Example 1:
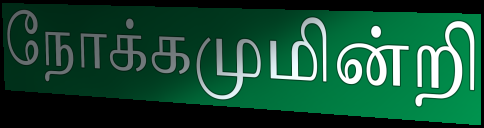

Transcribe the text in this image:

நோக்கமுமின்றி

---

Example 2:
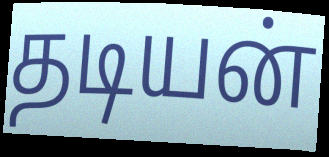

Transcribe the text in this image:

தடியன்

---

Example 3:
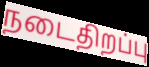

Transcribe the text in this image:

நடைதிறப்பு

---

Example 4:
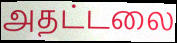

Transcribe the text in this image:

அதட்டலை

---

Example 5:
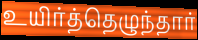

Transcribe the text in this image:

உயிர்த்தெழுந்தார்